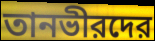
তানভীরদের